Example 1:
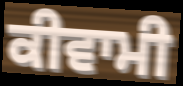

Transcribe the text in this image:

ਕੀਵਾਮੀ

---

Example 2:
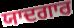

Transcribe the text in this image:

ਯਾਦਗਾਰ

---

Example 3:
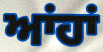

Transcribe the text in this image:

ਆਂਹਾਂ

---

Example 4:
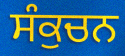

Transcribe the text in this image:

ਸੰਕੁਚਨ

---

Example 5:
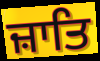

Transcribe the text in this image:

ਜ਼ਾਤਿ